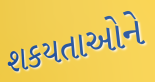
શકયતાઓને